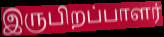
இருபிறப்பாளர்